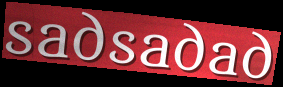
sadsadad